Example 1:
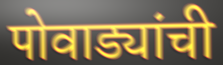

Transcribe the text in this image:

पोवाड्यांची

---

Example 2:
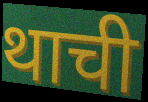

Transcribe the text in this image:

थाची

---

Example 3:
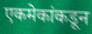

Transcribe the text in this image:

एकमेकांकडून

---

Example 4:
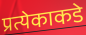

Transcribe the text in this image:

प्रत्येकाकडे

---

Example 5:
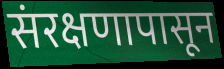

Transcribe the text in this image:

संरक्षणापासून